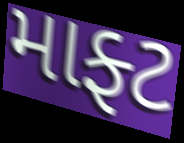
માફ્ટ